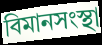
বিমানসংস্থা